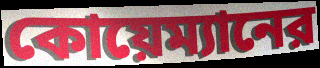
কোয়েম্যানের